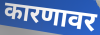
कारणावर